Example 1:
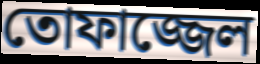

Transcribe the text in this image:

তোফাজ্জেল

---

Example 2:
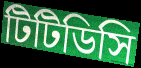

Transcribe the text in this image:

টিটিডিসি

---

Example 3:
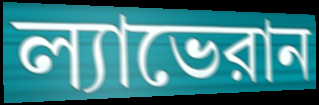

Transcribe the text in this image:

ল্যাভেরান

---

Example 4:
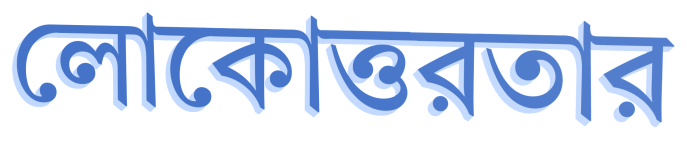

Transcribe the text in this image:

লোকোত্তরতার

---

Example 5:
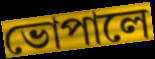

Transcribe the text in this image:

ভোপালে